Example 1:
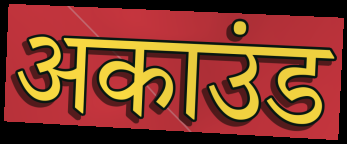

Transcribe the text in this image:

अकाउंड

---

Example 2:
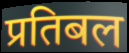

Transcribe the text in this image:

प्रतिबल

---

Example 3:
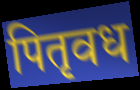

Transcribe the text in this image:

पितृवध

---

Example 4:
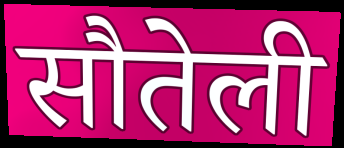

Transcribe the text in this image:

सौतेली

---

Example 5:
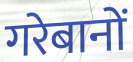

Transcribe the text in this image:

गरेबानों